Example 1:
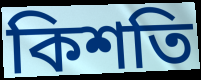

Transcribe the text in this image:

কিশতি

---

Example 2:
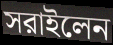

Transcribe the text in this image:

সরাইলেন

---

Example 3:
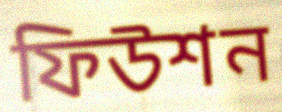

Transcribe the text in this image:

ফিউশন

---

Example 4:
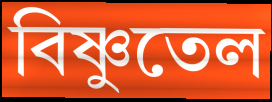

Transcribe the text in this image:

বিষ্ণুতেল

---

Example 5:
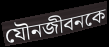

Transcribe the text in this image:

যৌনজীবনকে